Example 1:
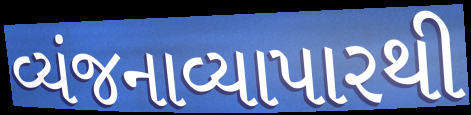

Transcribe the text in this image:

વ્યંજનાવ્યાપારથી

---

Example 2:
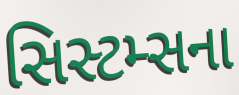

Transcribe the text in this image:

સિસ્ટમ્સના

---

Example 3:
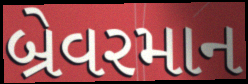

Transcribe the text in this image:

બ્રેવરમાન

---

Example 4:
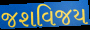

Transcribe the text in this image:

જશવિજય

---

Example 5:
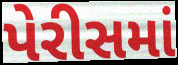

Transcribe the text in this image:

પેરીસમાં